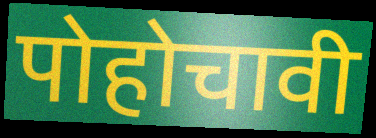
पोहोचावी